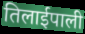
तिलाईपाली